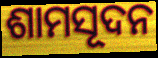
ଶାମସୂଦନ